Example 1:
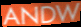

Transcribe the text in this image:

ANDW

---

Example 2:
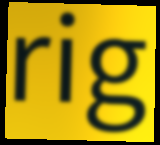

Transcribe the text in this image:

rig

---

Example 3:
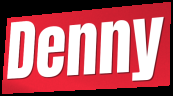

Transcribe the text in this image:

Denny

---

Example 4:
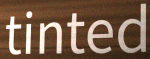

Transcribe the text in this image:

tinted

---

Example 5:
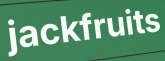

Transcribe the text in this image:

jackfruits